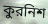
কুরনিশ